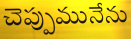
చెప్పుమునేను